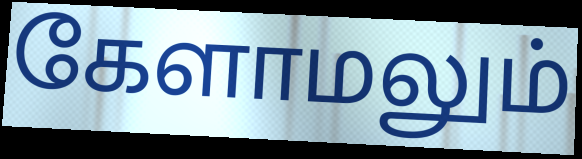
கேளாமலும்